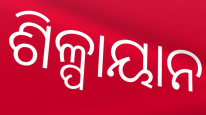
ଶିଳ୍ପାୟାନ